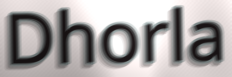
Dhorla